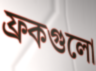
ফ্রকগুলো